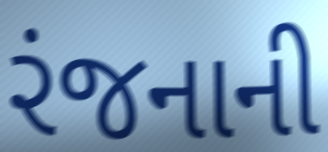
રંજનાની